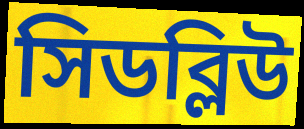
সিডব্লিউ